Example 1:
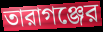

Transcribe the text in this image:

তারাগঞ্জের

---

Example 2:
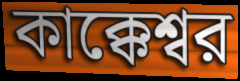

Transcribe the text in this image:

কাক্কেশ্বর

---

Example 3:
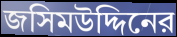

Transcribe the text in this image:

জসিমউদ্দিনের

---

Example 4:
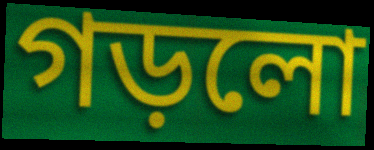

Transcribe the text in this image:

গড়লো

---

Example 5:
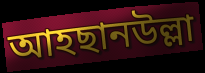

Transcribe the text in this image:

আহছানউল্লা